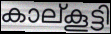
കാല്കൂട്ടി